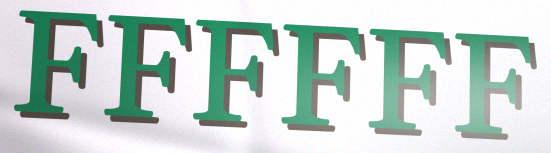
FFFFFF